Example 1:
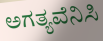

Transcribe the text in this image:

ಅಗತ್ಯವೆನಿಸಿ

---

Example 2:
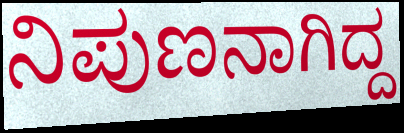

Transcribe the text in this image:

ನಿಪುಣನಾಗಿದ್ದ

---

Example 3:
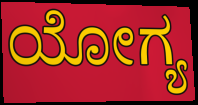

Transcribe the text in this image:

ಯೋಗ್ಯ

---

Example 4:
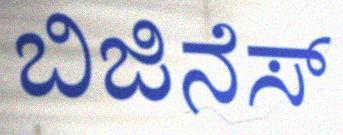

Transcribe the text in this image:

ಬಿಜಿನೆಸ್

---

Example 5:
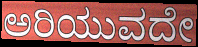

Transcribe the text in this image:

ಅರಿಯುವದೇ